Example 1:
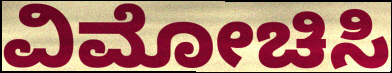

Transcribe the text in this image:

ವಿಮೋಚಿಸಿ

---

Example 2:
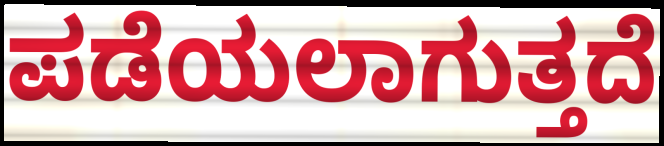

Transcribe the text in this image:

ಪಡೆಯಲಾಗುತ್ತದೆ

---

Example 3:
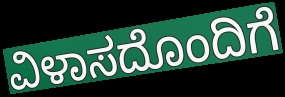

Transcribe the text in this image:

ವಿಳಾಸದೊಂದಿಗೆ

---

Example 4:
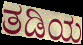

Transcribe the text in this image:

ತಡಿಯ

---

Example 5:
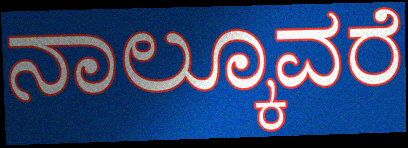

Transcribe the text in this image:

ನಾಲ್ಕೂವರೆ